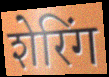
शेरिंग